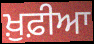
ਖ਼ੁਫ਼ੀਆ